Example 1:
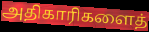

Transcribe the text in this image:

அதிகாரிகளைத்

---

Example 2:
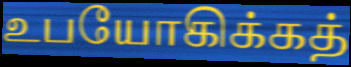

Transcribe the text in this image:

உபயோகிக்கத்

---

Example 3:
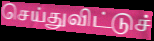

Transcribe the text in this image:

செய்துவிட்டுச்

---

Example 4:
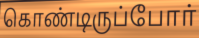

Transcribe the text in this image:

கொண்டிருப்போர்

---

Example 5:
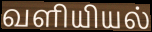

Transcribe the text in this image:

வளியியல்